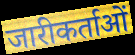
जारीकर्ताओं